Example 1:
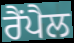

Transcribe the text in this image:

ਰੈਂਪੈਲ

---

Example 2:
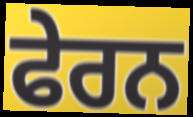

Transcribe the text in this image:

ਫੇਰਨ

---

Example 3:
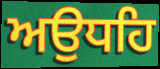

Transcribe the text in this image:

ਅਉਧਹਿ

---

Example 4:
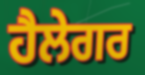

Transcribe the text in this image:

ਹੈਲੇਗਰ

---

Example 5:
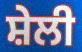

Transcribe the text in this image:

ਸ਼ੇਲੀ